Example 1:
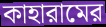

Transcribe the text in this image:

কাহারামের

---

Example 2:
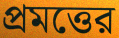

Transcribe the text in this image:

প্রমত্তের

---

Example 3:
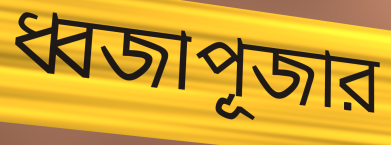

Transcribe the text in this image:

ধ্বজাপূজার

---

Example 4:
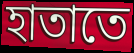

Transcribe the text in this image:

হাতাতে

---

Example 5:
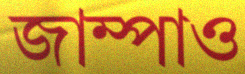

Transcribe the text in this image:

জাম্পাও